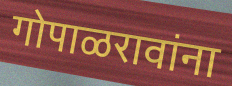
गोपाळरावांना